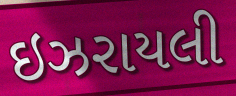
ઇઝરાયલી